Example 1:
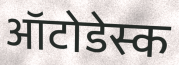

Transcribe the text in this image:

ऑटोडेस्क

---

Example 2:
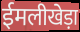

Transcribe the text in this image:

ईमलीखेड़ा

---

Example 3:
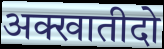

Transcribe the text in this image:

अक्खातीदो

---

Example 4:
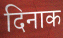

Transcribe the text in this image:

दिनाक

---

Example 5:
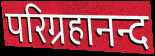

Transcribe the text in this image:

परिग्रहानन्द